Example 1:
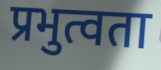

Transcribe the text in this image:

प्रभुत्वता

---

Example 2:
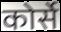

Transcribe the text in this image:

कोर्से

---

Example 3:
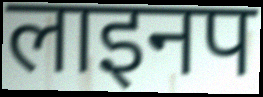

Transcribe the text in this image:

लाइनप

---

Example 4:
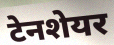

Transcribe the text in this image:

टेनशेयर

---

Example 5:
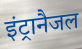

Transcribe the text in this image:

इंट्रानैजल